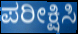
ಪರೀಕ್ಷಿಸಿ